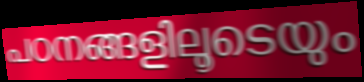
പഠനങ്ങളിലൂടെയും